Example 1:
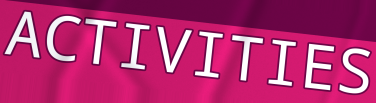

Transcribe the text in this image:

ACTIVITIES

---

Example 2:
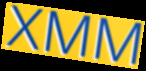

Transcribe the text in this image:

XMM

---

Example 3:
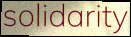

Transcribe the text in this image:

solidarity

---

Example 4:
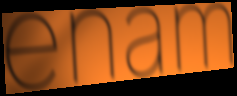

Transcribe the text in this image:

enam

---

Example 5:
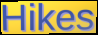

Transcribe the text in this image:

Hikes